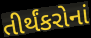
તીર્થંકરોનાં